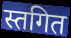
स्तगित